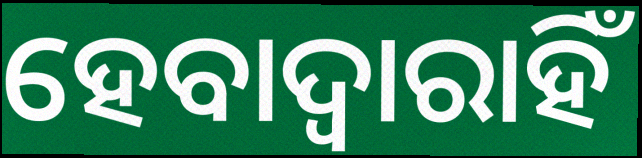
ହେବାଦ୍ଵାରାହିଁ